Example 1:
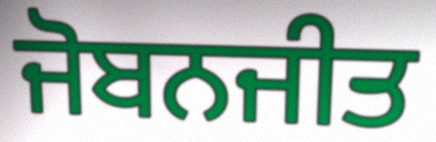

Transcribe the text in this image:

ਜੋਬਨਜੀਤ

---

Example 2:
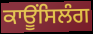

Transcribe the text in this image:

ਕਾਊਂਸਿਲੰਗ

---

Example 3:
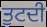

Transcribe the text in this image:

ਤੁਟਦੀ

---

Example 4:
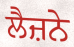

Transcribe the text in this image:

ਲੈਜ਼ਨੇ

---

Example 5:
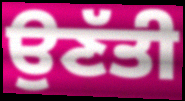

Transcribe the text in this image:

ਉਣੱਤੀ